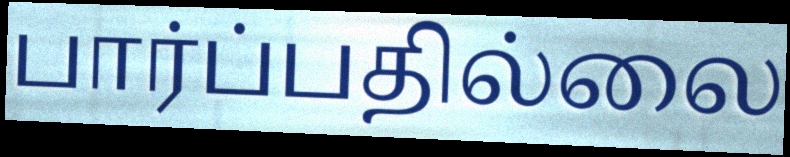
பார்ப்பதில்லை